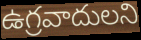
ఉగ్రవాదులని